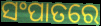
ସଂପାତରେ